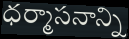
ధర్మాసనాన్ని